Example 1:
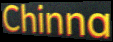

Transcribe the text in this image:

Chinna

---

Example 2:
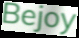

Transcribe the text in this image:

Bejoy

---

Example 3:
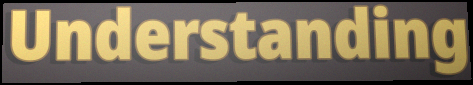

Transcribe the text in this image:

Understanding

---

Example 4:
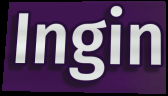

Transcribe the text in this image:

Ingin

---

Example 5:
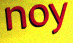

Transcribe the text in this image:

noy